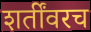
शर्तींवरच